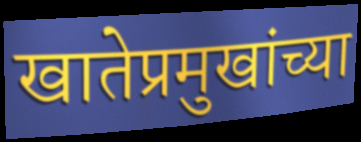
खातेप्रमुखांच्या